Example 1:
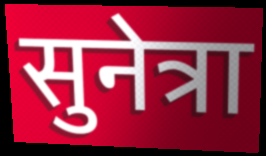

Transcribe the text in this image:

सुनेत्रा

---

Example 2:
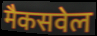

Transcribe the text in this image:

मैकसवेल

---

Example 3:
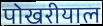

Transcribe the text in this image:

पोखरीयाल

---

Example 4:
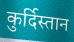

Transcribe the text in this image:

कुर्दिस्तान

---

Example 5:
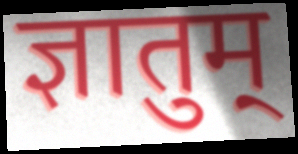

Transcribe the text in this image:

ज्ञातुम्